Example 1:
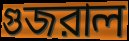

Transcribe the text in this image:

গুজরাল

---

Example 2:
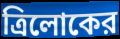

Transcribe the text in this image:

ত্রিলোকের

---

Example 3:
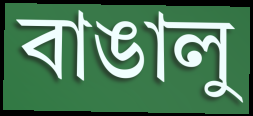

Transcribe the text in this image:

বাঙালু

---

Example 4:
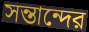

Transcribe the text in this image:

সন্তান্দের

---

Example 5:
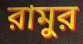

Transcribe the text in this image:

রামুর